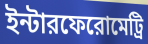
ইন্টারফেরোমেট্রি